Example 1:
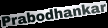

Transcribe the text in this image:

Prabodhankar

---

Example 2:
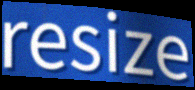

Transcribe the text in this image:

resize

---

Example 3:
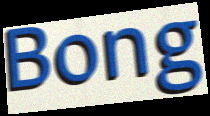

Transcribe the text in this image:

Bong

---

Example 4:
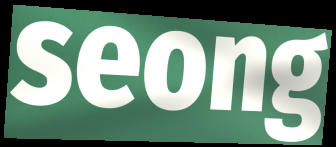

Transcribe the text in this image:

seong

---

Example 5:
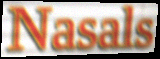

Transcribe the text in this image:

Nasals